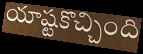
యాష్టకొచ్చింది